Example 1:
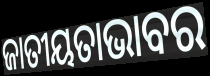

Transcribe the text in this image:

ଜାତୀୟତାଭାବର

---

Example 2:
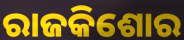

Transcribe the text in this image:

ରାଜକିଶୋର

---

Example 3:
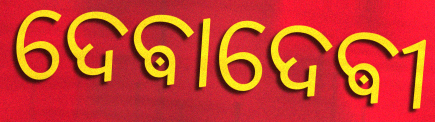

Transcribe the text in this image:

ଦେଵାଦେଵୀ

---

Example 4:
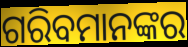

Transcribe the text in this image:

ଗରିବମାନଙ୍କର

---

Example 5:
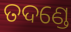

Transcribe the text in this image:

ତଦଣ୍ଡେ